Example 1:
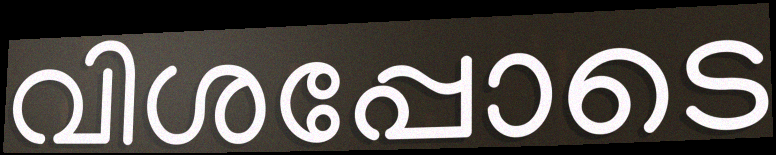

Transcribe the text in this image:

വിശപ്പോടെ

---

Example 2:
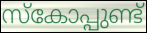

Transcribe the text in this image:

സ്കോപ്പുണ്ട്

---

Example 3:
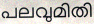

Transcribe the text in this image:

പലവുമിതി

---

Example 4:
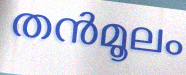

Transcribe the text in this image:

തൻമൂലം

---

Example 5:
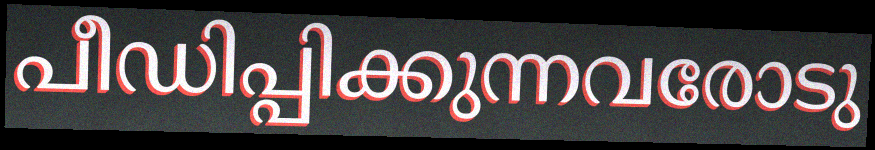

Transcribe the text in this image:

പീഡിപ്പിക്കുന്നവരോടു